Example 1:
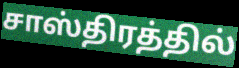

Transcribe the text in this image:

சாஸ்திரத்தில்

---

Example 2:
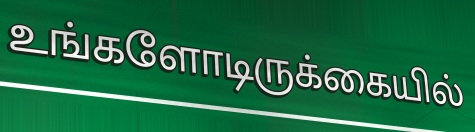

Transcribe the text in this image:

உங்களோடிருக்கையில்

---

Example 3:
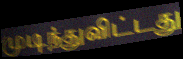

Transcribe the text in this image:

முடிந்துவிட்டது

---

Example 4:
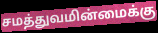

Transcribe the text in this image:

சமத்துவமின்மைக்கு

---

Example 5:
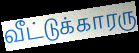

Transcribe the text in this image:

வீட்டுக்காரரு